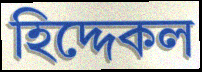
হিদ্দেকল